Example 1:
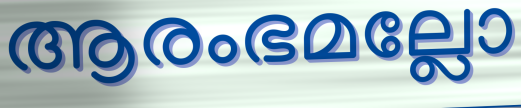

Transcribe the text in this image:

ആരംഭമല്ലോ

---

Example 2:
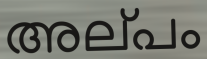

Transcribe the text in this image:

അല്‌പം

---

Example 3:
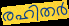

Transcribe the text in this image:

രഹിതർ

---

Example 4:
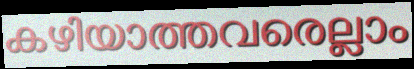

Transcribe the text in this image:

കഴിയാത്തവരെല്ലാം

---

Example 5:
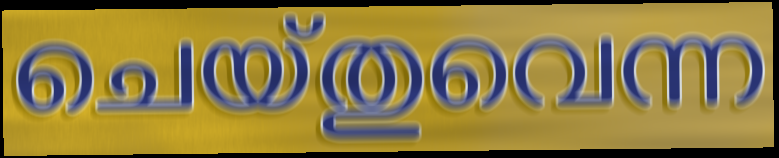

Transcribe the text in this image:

ചെയ്തുവെന്ന